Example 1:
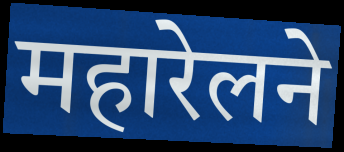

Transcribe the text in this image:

महारेलने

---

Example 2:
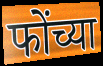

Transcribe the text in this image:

फोंच्या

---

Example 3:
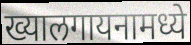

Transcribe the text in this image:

ख्यालगायनामध्ये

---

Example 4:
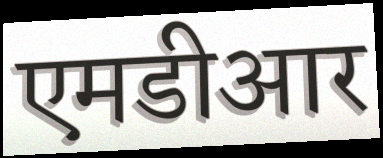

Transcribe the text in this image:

एमडीआर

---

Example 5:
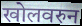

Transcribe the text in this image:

खोलवरुन